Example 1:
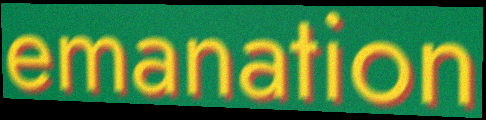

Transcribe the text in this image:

emanation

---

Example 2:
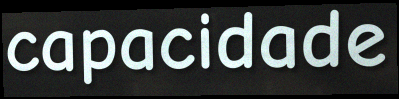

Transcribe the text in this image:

capacidade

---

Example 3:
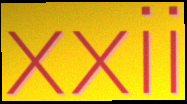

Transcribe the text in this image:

xxii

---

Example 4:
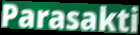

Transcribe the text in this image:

Parasakti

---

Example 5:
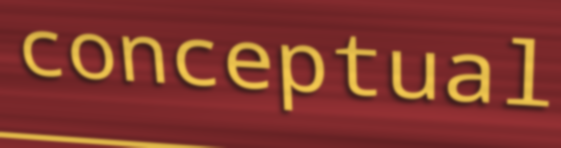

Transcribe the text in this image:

conceptual